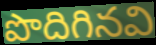
పొదిగినవి